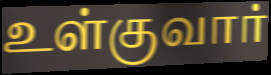
உள்குவார்